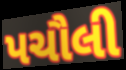
પચૌલી